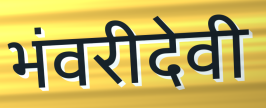
भंवरीदेवी